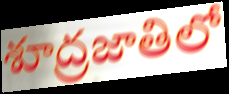
శూద్రజాతిలో